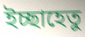
ইচ্ছাহেতু